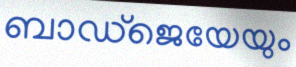
ബാഡ്ജെയേയും